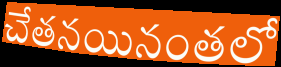
చేతనయినంతలో